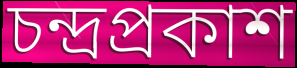
চন্দ্রপ্রকাশ